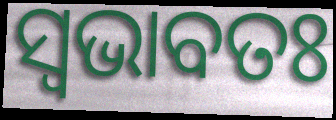
ସ୍ଵଭାବତଃ